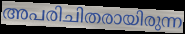
അപരിചിതരായിരുന്ന